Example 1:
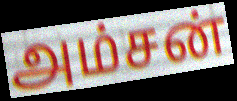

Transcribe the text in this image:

அம்சன்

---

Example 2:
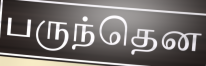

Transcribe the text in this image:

பருந்தென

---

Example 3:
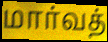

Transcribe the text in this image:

மார்வத்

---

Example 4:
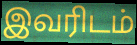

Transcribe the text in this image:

இவரிடம்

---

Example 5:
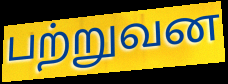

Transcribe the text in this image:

பற்றுவன